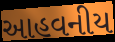
આહવનીય